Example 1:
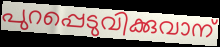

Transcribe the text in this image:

പുറപ്പെടുവിക്കുവാന്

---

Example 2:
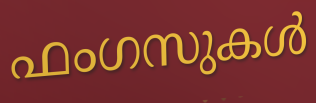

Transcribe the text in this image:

ഫംഗസുകൾ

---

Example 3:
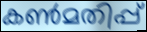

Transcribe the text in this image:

കൺമതിപ്പ്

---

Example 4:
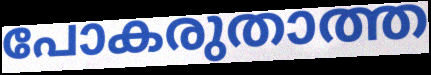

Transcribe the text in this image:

പോകരുതാത്ത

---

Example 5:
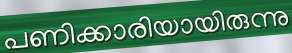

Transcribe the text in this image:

പണിക്കാരിയായിരുന്നു